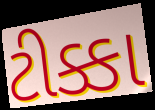
ટીક્કા